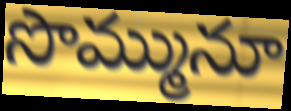
సొమ్మునూ